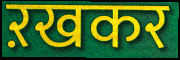
ऱखकर